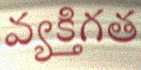
వ్యక్తిగత